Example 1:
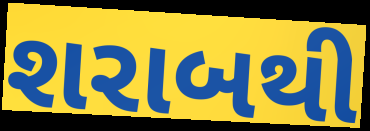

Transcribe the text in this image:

શરાબથી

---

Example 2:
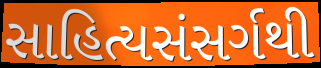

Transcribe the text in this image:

સાહિત્યસંસર્ગથી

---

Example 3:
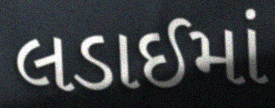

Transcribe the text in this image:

લડાઈમાં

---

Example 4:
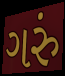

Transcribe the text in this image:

ગરું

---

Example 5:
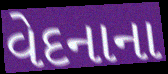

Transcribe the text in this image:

વેદનાના